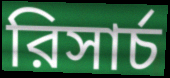
রিসার্চ